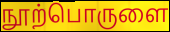
நூற்பொருளை